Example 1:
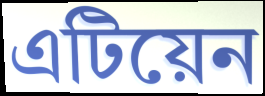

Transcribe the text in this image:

এটিয়েন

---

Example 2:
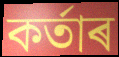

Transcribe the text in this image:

কৰ্তাৰ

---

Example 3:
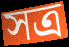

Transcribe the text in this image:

সত্ৰ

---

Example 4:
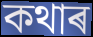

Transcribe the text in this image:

কথাৰ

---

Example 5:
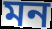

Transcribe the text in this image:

মন